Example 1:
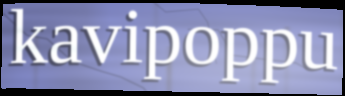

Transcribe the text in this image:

kavipoppu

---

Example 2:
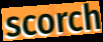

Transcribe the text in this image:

scorch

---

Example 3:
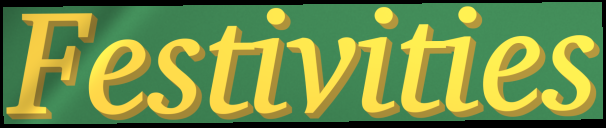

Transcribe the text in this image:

Festivities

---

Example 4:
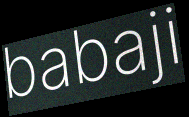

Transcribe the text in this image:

babaji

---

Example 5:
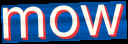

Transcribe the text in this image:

mow